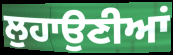
ਲੁਹਾਉਣੀਆਂ